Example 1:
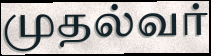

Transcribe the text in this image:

முதல்வர்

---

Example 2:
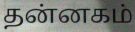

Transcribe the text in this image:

தன்னகம்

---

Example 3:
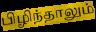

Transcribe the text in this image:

பிழிந்தாலும்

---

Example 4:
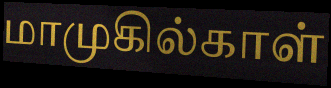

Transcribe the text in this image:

மாமுகில்காள்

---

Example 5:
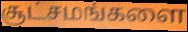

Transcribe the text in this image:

சூட்சமங்களை